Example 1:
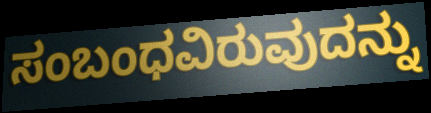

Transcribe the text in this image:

ಸಂಬಂಧವಿರುವುದನ್ನು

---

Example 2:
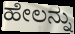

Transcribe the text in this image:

ಹೇಲನ್ನು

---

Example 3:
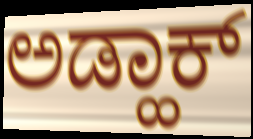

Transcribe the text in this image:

ಅಡ್ಹಾಕ್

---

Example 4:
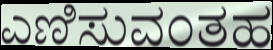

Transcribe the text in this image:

ಎಣಿಸುವಂತಹ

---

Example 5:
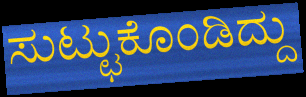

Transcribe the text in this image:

ಸುಟ್ಟುಕೊಂಡಿದ್ದು